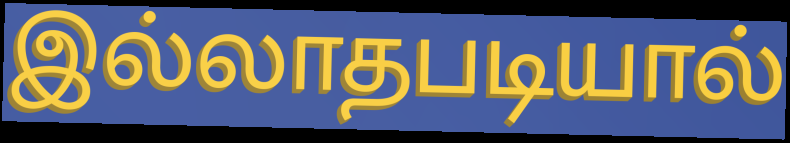
இல்லாதபடியால்